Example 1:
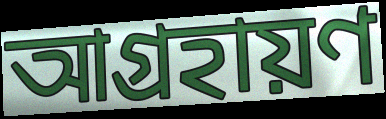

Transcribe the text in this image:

আগ্রহায়ণ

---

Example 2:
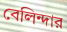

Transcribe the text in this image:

বেলিন্দার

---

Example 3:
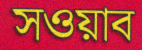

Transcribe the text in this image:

সওয়াব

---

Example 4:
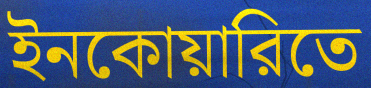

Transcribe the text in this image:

ইনকোয়ারিতে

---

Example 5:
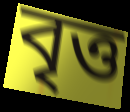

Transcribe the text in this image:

বৃত্ত